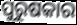
ପୁରୁଷକାର